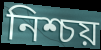
নিশ্চয়